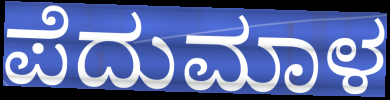
ಪೆದುಮಾಳ